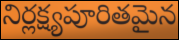
నిర్లక్ష్యపూరితమైన